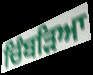
ਚਿੰਬੜਿਆ